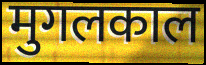
मुगलकाल